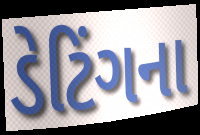
ડેટિંગના